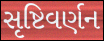
સૃષ્ટિવર્ણન